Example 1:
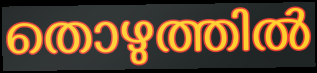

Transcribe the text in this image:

തൊഴുത്തിൽ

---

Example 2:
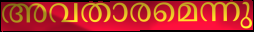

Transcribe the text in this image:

അവതാരമെന്നു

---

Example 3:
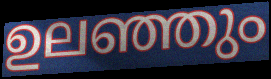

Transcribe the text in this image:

ഉലഞ്ഞും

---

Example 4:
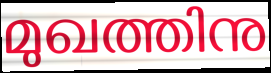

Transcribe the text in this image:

മുഖത്തിനു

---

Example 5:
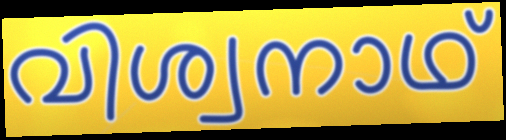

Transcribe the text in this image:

വിശ്വനാഥ്